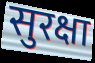
सुरक्षा